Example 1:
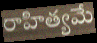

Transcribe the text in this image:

రాహిత్యమే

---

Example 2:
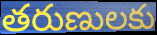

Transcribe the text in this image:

తరుణులకు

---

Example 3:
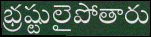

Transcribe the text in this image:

భ్రష్టులైపోతారు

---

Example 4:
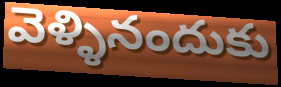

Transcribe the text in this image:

వెళ్ళినందుకు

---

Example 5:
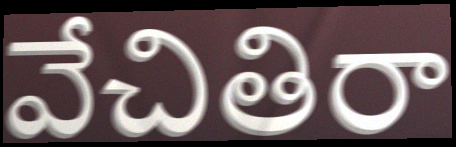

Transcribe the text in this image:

వేచితిరా